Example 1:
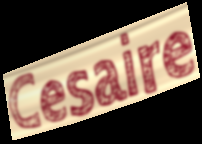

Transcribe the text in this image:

Cesaire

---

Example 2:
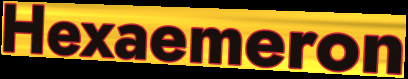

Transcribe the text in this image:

Hexaemeron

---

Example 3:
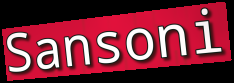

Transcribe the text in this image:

Sansoni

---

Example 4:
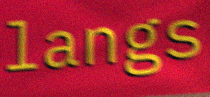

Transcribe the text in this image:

langs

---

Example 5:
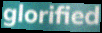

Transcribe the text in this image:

glorified